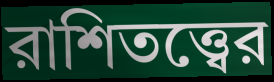
রাশিতত্ত্বের